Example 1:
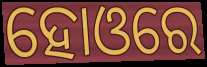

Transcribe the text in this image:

ହୋଓରେ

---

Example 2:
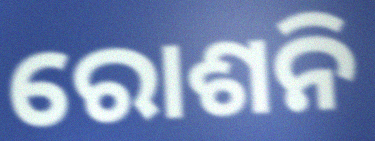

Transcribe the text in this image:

ରୋଶନି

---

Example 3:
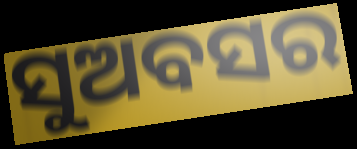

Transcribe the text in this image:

ସୁଅବସର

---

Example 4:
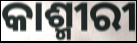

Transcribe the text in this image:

କାଶ୍ମୀରୀ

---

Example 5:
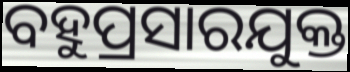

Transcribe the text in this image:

ବହୁପ୍ରସାରଯୁକ୍ତ